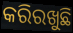
କରିରଖୁଛି